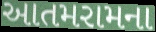
આતમરામના